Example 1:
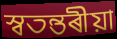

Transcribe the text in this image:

স্বতন্তৰীয়া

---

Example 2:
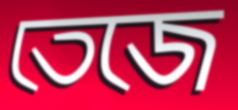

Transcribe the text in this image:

তেজে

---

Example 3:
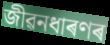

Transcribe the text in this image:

জীৱনধাৰণৰ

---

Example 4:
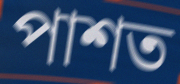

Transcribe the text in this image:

পাশত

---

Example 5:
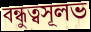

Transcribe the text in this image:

বন্ধুত্বসূলভ